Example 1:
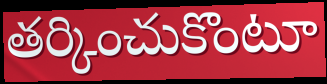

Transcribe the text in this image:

తర్కించుకొంటూ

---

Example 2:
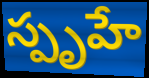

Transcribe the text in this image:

స్పృహే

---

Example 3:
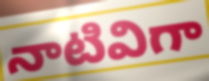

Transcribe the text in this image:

నాటివిగా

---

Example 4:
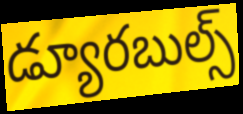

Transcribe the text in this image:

డ్యూరబుల్స్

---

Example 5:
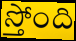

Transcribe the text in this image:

స్తోంది